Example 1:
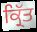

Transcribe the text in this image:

ਕ੍ਰਿੱਤ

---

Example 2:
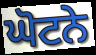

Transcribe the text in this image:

ਘੋਟਨੇ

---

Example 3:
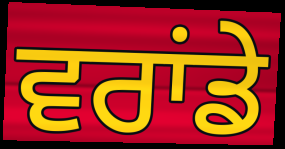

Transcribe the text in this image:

ਵਰਾਂਡੇ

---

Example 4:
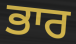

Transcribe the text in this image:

ਭਾਰ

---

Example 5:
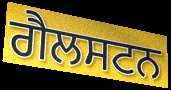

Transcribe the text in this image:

ਗੈਲਸਟਨ